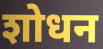
शोधन